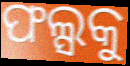
ଫଲ୍ସକୁ